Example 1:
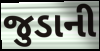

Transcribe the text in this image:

જુડાની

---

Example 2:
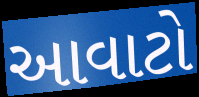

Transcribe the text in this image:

આવાટો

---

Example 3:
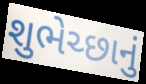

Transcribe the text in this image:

શુભેચ્છાનું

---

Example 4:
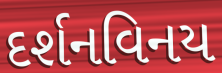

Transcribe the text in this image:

દર્શનવિનય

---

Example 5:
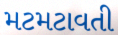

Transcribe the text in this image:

મટમટાવતી